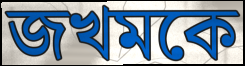
জখমকে